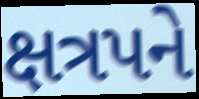
ક્ષત્રપને